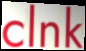
clnk